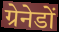
ग्रेनेडों